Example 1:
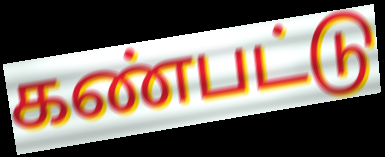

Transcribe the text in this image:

கண்பட்டு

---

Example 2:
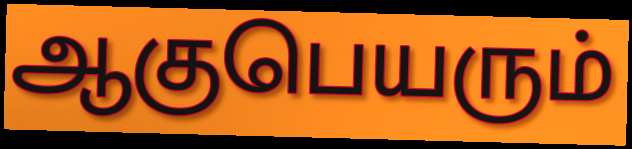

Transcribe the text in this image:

ஆகுபெயரும்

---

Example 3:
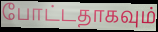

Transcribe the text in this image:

போட்டதாகவும்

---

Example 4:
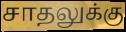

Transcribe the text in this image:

சாதலுக்கு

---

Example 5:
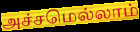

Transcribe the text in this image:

அச்சமெல்லாம்